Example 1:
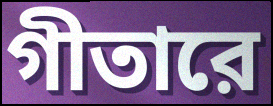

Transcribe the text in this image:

গীতারে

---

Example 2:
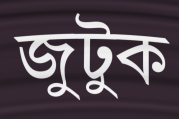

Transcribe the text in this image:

জুটুক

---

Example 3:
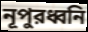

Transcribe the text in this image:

নূপুরধ্বনি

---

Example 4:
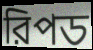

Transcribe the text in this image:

রিপড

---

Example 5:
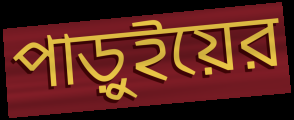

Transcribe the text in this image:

পাড়ুইয়ের